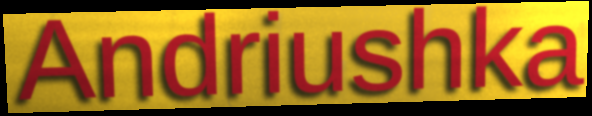
Andriushka